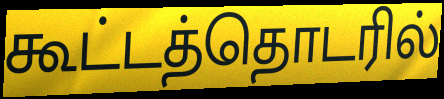
கூட்டத்தொடரில்